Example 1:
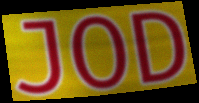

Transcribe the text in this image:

JOD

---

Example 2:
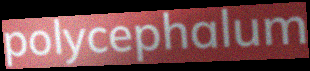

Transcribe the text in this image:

polycephalum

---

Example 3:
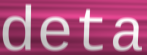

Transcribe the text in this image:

deta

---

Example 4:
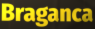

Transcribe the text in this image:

Braganca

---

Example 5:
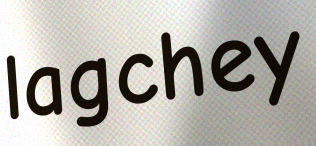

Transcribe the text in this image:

lagchey